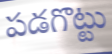
పడగొట్టు